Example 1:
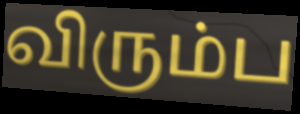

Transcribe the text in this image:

விரும்ப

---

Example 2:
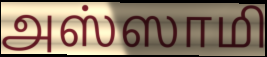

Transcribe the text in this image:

அஸ்ஸாமி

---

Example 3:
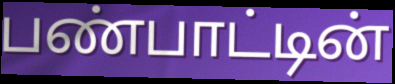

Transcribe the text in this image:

பண்பாட்டின்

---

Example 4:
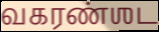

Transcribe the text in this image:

வகரண்ஶட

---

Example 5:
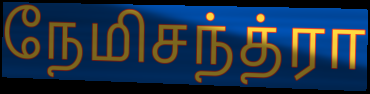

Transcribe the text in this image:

நேமிசந்த்ரா